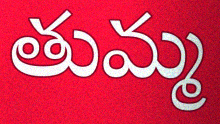
తుమ్మ